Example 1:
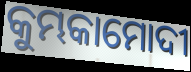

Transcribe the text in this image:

କୁମ୍ଭକାମୋଦୀ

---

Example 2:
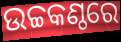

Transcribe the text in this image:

ଉଚ୍ଚକଣ୍ଠରେ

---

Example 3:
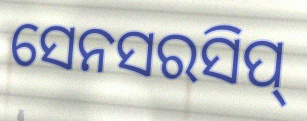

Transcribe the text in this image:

ସେନସରସିପ୍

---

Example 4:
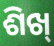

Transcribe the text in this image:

ଶିଖ୍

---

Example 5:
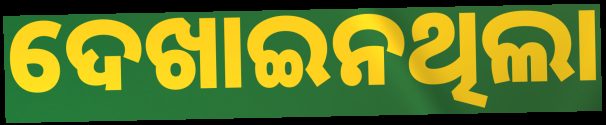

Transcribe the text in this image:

ଦେଖାଇନଥିଲା